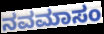
ನವಮಾಸಂ